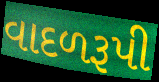
વાદળરૂપી